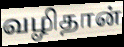
வழிதான்